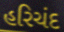
હરિચંદ